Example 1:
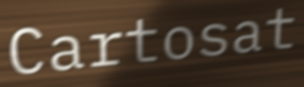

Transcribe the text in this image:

Cartosat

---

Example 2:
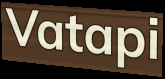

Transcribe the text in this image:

Vatapi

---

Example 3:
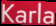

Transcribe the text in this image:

Karla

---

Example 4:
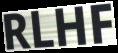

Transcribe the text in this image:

RLHF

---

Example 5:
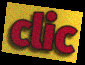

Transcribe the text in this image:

clic